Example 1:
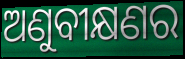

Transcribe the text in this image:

ଅଣୁବୀକ୍ଷଣର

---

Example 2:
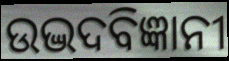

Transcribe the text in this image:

ଉଦ୍ଭଦବିଜ୍ଞାନୀ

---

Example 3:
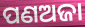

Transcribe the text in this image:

ପଣଅଜା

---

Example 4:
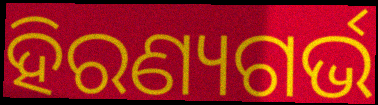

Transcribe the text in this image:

ହିରଣ୍ୟଗର୍ଭ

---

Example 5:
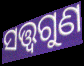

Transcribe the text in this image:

ସତ୍ତ୍ୱଗୁଣ